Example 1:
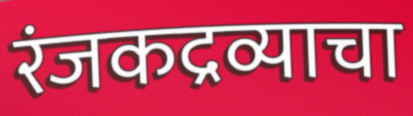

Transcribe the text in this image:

रंजकद्रव्याचा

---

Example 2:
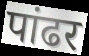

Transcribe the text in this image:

पांढर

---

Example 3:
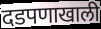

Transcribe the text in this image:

दडपणाखाली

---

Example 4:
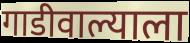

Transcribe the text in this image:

गाडीवाल्याला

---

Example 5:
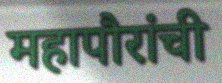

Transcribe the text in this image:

महापौरांची